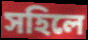
সহিলে